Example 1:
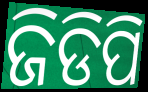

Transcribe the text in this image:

ଜିଡିପି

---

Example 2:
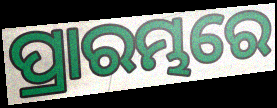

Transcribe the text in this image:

ପ୍ରାରମ୍ଭରେ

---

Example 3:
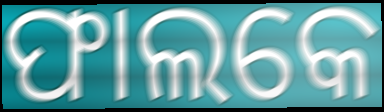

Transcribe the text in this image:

ଫାଲକେ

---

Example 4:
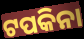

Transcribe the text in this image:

ଟପକିନା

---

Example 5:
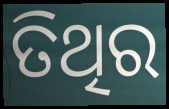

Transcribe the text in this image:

ତିଥିର